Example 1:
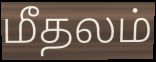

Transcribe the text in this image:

மீதலம்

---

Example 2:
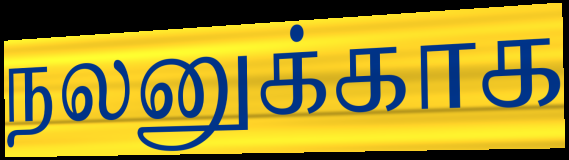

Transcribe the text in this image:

நலனுக்காக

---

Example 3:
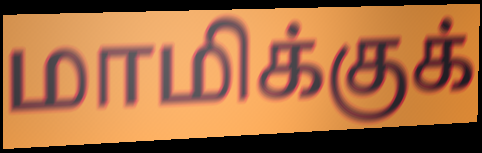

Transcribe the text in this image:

மாமிக்குக்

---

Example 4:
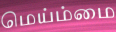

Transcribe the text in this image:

மெய்ம்மை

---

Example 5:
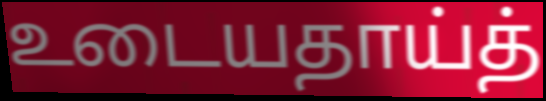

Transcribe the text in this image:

உடையதாய்த்